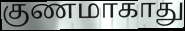
குணமாகாது